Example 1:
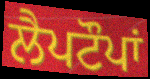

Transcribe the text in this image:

ਲੈਪਟੌਪਾਂ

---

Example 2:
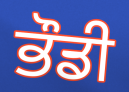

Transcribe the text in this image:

ਭੌਡੀ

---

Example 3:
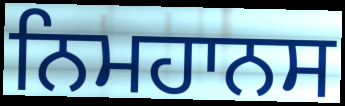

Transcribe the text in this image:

ਨਿਮਹਾਨਸ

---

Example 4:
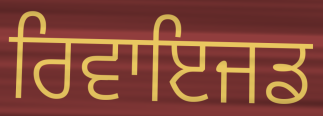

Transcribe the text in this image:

ਰਿਵਾਇਜਡ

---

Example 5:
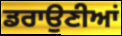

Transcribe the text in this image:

ਡਰਾਉਣੀਆਂ